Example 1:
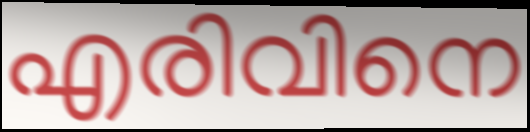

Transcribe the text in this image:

എരിവിനെ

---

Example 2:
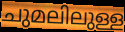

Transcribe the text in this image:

ചുമലിലുള്ള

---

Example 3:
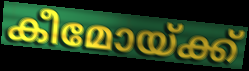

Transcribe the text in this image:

കീമോയ്ക്ക്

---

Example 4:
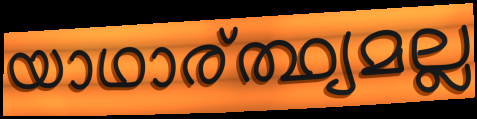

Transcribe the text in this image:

യാഥാര്ത്ഥ്യമല്ല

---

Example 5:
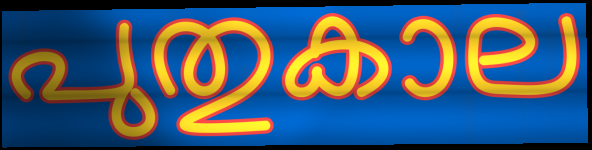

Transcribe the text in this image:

പുതുകാല